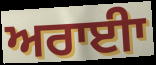
ਅਰਾਈਾ